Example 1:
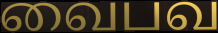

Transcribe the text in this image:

வைபவ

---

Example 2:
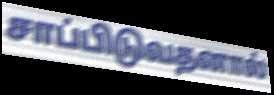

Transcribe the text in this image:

சாப்பிடுவதனால்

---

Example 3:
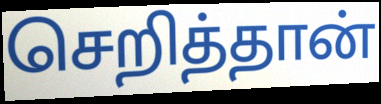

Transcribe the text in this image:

செறித்தான்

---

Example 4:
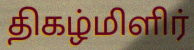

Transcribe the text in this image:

திகழ்மிளிர்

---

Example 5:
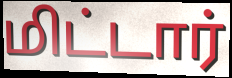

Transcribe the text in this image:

மிட்டார்